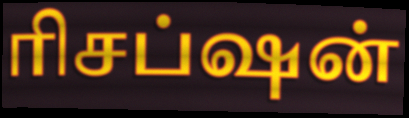
ரிசப்ஷன்